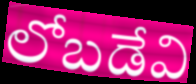
లోబడేవి